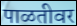
पाळतीवर